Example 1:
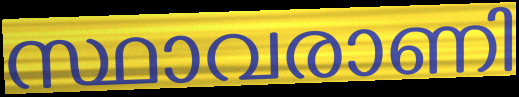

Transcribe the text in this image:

സ്ഥാവരാണി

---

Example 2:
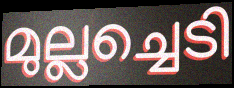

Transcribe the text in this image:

മുല്ലച്ചെടി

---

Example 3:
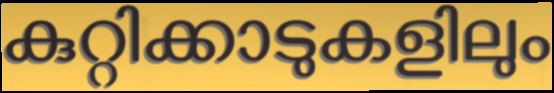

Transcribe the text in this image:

കുറ്റിക്കാടുകളിലും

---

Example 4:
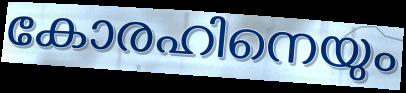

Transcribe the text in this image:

കോരഹിനെയും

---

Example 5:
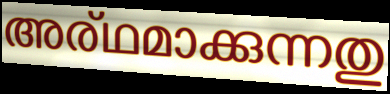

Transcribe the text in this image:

അര്ഥമാക്കുന്നതു